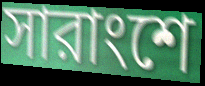
সারাংশে